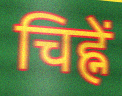
चिह्नें